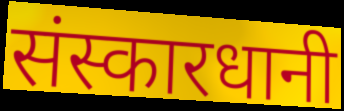
संस्कारधानी